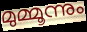
മുമ്മൂന്നും